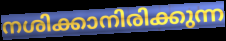
നശിക്കാനിരിക്കുന്ന